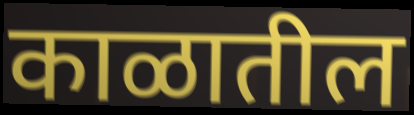
काळातील